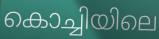
കൊച്ചിയിലെ